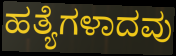
ಹತ್ಯೆಗಳಾದವು